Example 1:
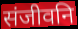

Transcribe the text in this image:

संजीवनि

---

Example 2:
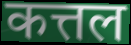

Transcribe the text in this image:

कत्तल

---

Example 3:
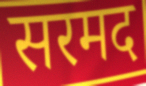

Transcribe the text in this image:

सरमद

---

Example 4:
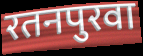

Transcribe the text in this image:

रतनपुरवा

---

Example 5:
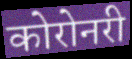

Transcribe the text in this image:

कोरोनरी